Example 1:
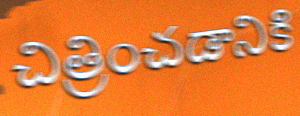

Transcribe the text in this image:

చిత్రించడానికి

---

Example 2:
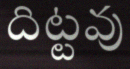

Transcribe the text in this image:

దిట్టవు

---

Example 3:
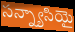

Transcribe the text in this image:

సన్న్యాసియై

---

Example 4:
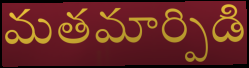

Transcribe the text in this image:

మతమార్పిడి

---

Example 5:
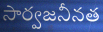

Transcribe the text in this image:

సార్వజనీనత